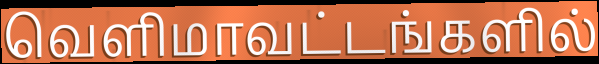
வெளிமாவட்டங்களில்